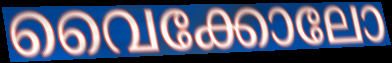
വൈക്കോലോ